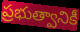
ప్రభుత్వానికీ